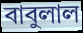
বাবুলাল